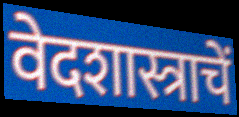
वेदशास्त्राचें